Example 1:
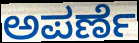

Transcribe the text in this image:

ಅಪರ್ಣೆ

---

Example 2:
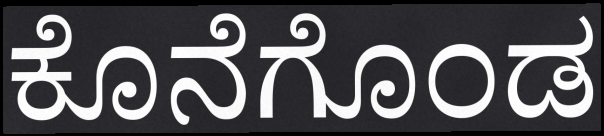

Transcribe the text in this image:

ಕೊನೆಗೊಂಡ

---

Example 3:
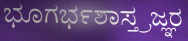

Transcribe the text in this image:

ಭೂಗರ್ಭಶಾಸ್ತ್ರಜ್ಞರ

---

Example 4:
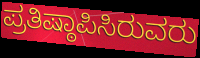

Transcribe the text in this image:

ಪ್ರತಿಷ್ಠಾಪಿಸಿರುವರು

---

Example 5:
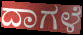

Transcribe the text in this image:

ದಾಗಳೆ